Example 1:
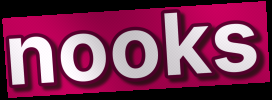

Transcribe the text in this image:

nooks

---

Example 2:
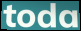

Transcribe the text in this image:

toda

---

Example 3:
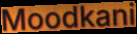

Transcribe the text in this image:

Moodkani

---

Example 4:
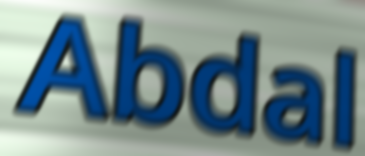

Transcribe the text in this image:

Abdal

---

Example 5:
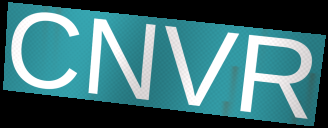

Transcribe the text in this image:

CNVR